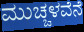
ಮುಚ್ಚಳವೆನೆ